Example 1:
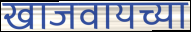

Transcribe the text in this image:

खाजवायच्या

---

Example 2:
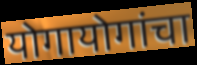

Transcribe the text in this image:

योगायोगांचा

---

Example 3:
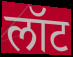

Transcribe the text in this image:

लॉट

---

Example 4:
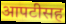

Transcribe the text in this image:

आपटीसह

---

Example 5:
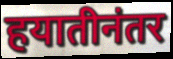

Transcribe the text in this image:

हयातीनंतर